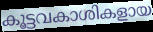
കൂട്ടവകാശികളായ